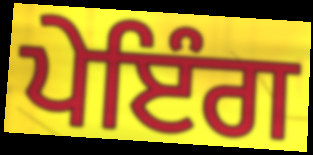
ਪੇਇੰਗ